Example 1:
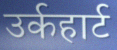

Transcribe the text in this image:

उर्कहार्ट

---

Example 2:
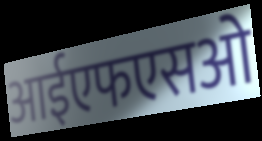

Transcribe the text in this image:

आईएफएसओ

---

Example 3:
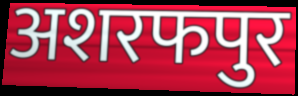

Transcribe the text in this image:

अशरफपुर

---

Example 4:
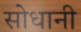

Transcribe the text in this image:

सोधानी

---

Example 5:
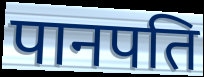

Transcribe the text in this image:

पानपति